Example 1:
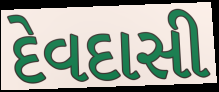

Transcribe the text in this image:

દેવદાસી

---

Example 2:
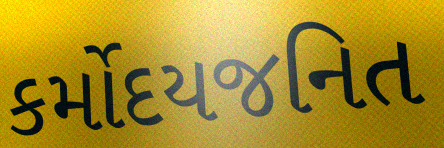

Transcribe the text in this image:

કર્મોદયજનિત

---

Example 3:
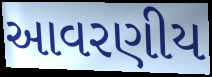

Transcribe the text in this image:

આવરણીય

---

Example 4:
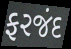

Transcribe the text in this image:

ફરજંદ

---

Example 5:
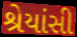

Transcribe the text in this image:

શ્રેયાંસી